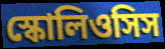
স্কোলিওসিস